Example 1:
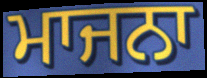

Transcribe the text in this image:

ਮਾਜਨਾ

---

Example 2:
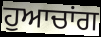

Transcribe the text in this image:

ਹੁਆਚਾਂਗ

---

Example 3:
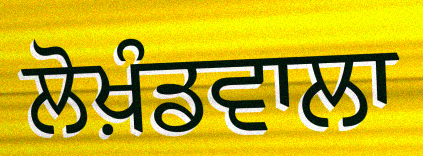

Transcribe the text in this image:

ਲੋਖ਼ੰਡਵਾਲਾ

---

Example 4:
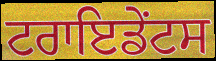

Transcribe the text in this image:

ਟਰਾਇਡੇਂਟਸ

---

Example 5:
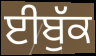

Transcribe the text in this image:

ਈਬੁੱਕ